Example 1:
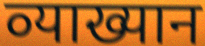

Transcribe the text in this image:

व्‍याख्‍यान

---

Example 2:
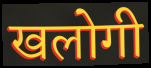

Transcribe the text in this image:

खलोगी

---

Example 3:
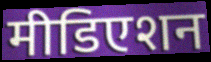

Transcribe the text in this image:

मीडिएशन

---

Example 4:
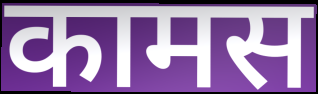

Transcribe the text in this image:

कामस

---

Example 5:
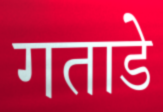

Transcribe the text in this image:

गताडे